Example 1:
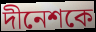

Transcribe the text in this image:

দীনেশকে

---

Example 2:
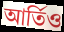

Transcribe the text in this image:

আর্তিও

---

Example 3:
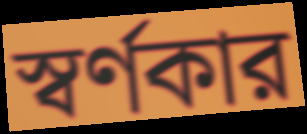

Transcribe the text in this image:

স্বর্ণকার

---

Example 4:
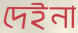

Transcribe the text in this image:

দেইনা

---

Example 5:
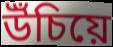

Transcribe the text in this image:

উঁচিয়ে